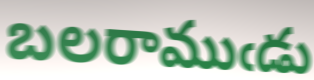
బలరాముఁడు